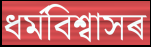
ধৰ্মবিশ্বাসৰ